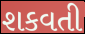
શકવતી